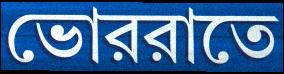
ভোররাতে